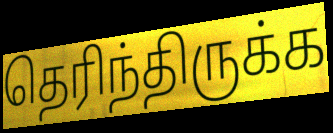
தெரிந்திருக்க